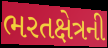
ભરતક્ષેત્રની